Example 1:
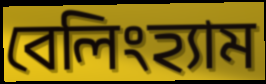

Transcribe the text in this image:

বেলিংহ্যাম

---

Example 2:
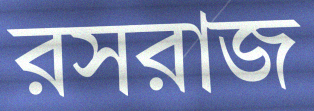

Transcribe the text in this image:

রসরাজ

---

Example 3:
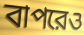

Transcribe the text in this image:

বাপরেও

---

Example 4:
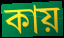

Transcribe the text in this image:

কায়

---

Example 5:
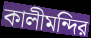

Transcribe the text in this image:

কালীমন্দির